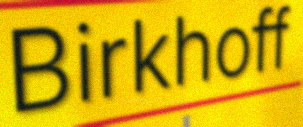
Birkhoff